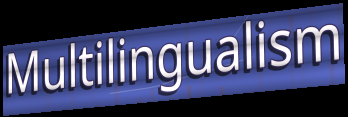
Multilingualism